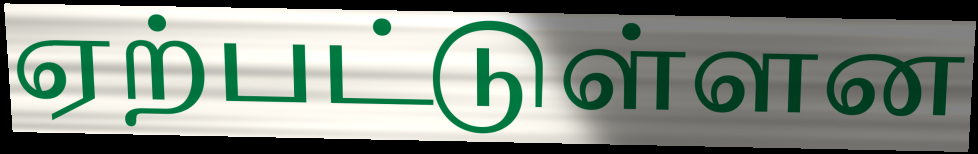
ஏற்பட்டுள்ளன